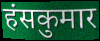
हंसकुमार